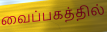
வைப்பகத்தில்